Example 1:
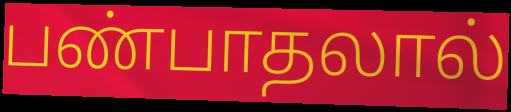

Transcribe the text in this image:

பண்பாதலால்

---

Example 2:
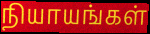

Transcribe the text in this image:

நியாயங்கள்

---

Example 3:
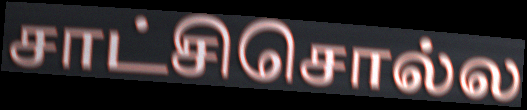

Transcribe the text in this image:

சாட்சிசொல்ல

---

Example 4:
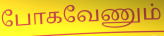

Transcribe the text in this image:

போகவேணும்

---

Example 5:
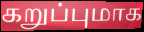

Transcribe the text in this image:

கறுப்புமாக